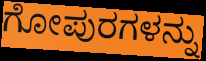
ಗೋಪುರಗಳನ್ನು